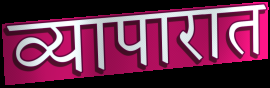
व्यापारात